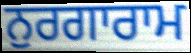
ਨੁਰਗਾਰਾਮ